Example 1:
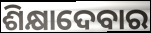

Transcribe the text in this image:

ଶିକ୍ଷାଦେବାର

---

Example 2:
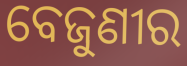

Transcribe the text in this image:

ବେଜୁଣୀର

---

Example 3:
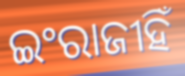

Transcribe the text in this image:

ଇଂରାଜୀହିଁ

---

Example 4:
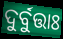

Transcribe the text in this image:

ଦୁର୍ବୁତ୍ତାଃ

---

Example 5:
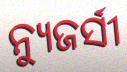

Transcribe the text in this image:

ନ୍ୟୁଜର୍ସୀ